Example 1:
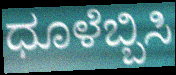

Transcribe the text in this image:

ಧೂಳೆಬ್ಬಿಸಿ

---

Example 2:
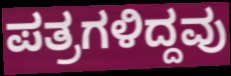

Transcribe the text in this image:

ಪತ್ರಗಳಿದ್ದವು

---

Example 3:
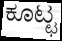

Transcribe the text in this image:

ಕೂಟ್ಟ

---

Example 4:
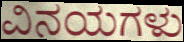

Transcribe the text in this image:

ವಿನಯಗಳು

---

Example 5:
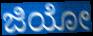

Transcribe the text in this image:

ಜಿಯೋ